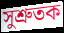
সুশ্ৰুতক